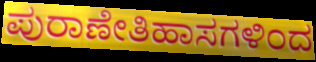
ಪುರಾಣೇತಿಹಾಸಗಳಿಂದ